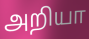
அறியா